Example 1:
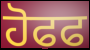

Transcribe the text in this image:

ਹੋਫਫ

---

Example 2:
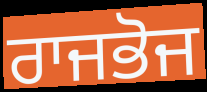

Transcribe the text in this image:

ਰਾਜਭੋਜ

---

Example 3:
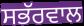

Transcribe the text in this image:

ਸਭੱਰਵਾਲ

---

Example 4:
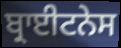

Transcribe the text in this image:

ਬ੍ਰਾਈਟਨੇਸ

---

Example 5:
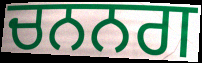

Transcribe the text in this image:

ਚਨਨਗ